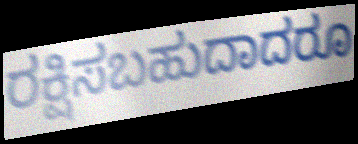
ರಕ್ಷಿಸಬಹುದಾದರೂ